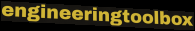
engineeringtoolbox